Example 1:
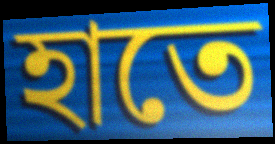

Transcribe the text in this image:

হাতে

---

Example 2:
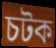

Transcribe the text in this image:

চটক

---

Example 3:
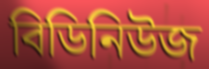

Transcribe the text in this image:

বিডিনিউজ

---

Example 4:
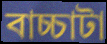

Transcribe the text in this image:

বাচ্চাটা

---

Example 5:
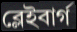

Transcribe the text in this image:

ব্লেইবার্গ